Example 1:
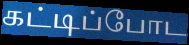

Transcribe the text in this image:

கட்டிப்போட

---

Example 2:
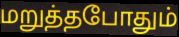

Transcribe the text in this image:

மறுத்தபோதும்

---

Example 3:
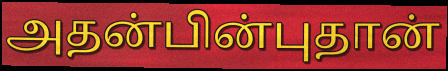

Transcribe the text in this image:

அதன்பின்புதான்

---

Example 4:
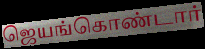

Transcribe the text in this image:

ஜெயங்கொண்டார்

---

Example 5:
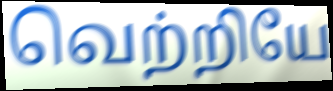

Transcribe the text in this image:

வெற்றியே